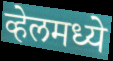
व्हेलमध्ये